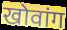
खोवांग